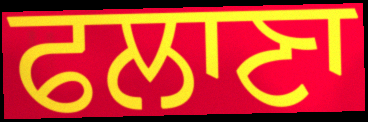
ਫਲਾਣਾ